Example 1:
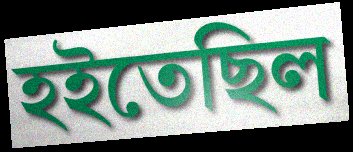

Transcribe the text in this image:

হইতেছিল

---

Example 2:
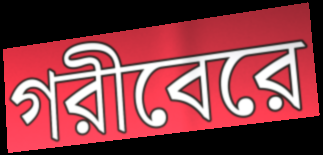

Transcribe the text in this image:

গরীবেরে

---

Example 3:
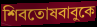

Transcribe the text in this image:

শিবতোষবাবুকে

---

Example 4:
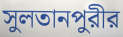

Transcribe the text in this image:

সুলতানপুরীর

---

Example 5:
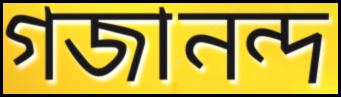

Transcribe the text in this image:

গজানন্দ